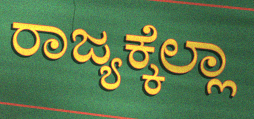
ರಾಜ್ಯಕ್ಕೆಲ್ಲಾ